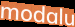
modalu